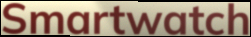
Smartwatch